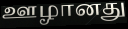
ஊழானது